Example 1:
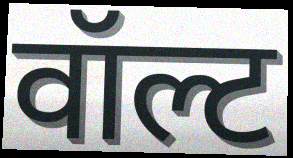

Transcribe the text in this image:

वॉल्ट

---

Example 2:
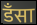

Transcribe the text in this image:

डँसा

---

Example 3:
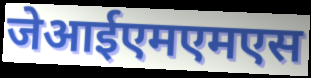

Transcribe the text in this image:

जेआईएमएमएस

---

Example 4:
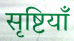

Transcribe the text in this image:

सृष्टियाँ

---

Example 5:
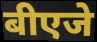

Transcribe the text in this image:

बीएजे